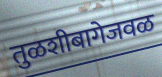
तुळशीबागेजवळ